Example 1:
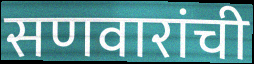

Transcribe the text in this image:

सणवारांची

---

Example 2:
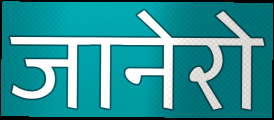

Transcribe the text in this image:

जानेरो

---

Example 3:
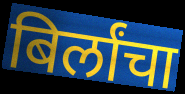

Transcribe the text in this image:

बिर्लांचा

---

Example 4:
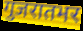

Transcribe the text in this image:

गुजरातभर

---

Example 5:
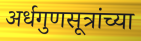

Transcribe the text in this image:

अर्धगुणसूत्रांच्या